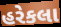
હરેકલા